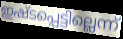
ഇഷ്ടപ്പെട്ടില്ലെന്ന്